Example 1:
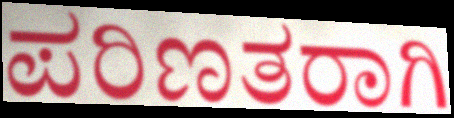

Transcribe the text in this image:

ಪರಿಣತರಾಗಿ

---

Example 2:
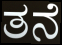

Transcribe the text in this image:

ತನೆ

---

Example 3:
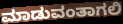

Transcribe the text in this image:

ಮಾಡುವಂತಾಗಲಿ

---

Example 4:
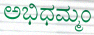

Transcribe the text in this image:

ಅಭಿಧಮ್ಮಂ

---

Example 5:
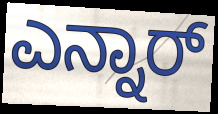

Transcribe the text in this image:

ಎನ್ನಾರ್